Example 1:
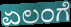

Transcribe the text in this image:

ಏಲಂಗೆ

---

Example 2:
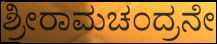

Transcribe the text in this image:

ಶ್ರೀರಾಮಚಂದ್ರನೇ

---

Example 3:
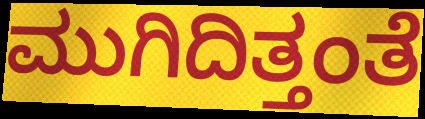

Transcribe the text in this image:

ಮುಗಿದಿತ್ತಂತೆ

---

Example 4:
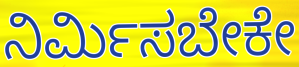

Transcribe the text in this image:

ನಿರ್ಮಿಸಬೇಕೇ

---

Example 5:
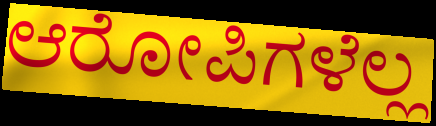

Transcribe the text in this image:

ಆರೋಪಿಗಳೆಲ್ಲ